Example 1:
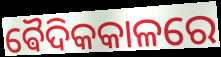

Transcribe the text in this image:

ଵୈଦିକକାଳରେ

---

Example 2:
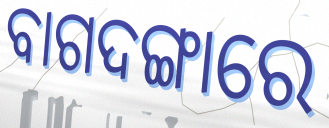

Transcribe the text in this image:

ବାଗଦଙ୍ଗାରେ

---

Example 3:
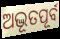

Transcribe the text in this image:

ଅଦ୍ଭୂତପୂର୍ବ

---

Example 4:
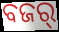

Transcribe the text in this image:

ବଜର୍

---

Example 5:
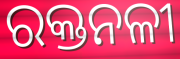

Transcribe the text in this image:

ରକ୍ତନଳୀ